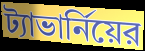
ট্যাভার্নিয়ের